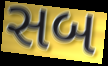
સબ